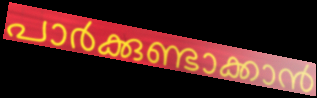
പാർക്കുണ്ടാക്കാൻ